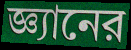
জ্ঞ্যানের